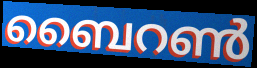
ബൈറൺ